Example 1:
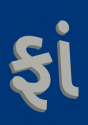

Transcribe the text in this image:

ફાં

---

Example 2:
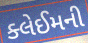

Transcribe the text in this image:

ક્લેઈમની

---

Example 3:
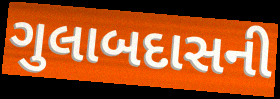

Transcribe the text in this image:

ગુલાબદાસની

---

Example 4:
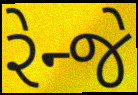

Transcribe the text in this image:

રેન્જે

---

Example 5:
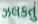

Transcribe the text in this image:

ઝલકતું